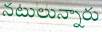
నటులున్నారు